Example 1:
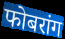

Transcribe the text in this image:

फोबरांग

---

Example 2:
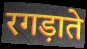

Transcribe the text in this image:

रगड़ाते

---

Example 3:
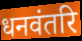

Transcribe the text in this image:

धनवंतरि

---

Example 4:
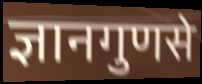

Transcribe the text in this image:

ज्ञानगुणसे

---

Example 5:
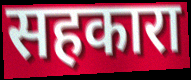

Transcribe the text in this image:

सहकारा